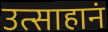
उत्साहानं